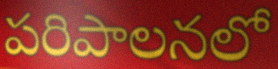
పరిపాలనలో